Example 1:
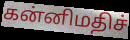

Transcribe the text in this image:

கன்னிமதிச்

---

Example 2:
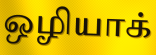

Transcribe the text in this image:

ஒழியாக்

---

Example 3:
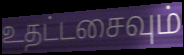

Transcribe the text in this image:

உதட்டசைவும்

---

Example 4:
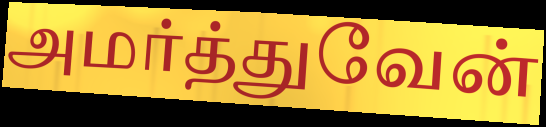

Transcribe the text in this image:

அமர்த்துவேன்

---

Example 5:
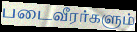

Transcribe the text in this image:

படைவீரர்களும்